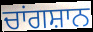
ਚਾਂਗਸ਼ਾਨ